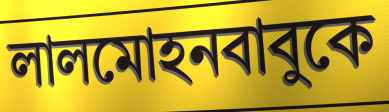
লালমোহনবাবুকে